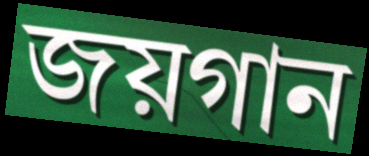
জয়গান